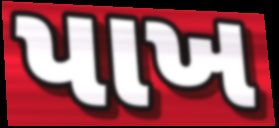
પાખ